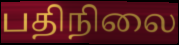
பதிநிலை